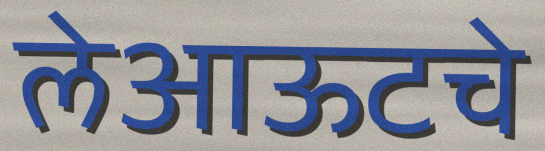
लेआऊटचे